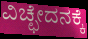
ವಿಚ್ಛೇದನಕ್ಕೆ